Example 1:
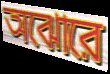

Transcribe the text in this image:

অঝোরে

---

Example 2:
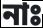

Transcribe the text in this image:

নাঃ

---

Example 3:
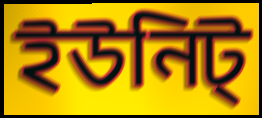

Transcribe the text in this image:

ইউনিট্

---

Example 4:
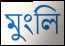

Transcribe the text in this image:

মুংলি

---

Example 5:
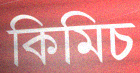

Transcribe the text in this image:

কিমিচ